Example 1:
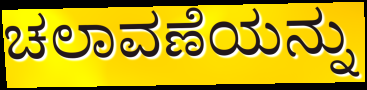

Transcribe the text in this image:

ಚಲಾವಣೆಯನ್ನು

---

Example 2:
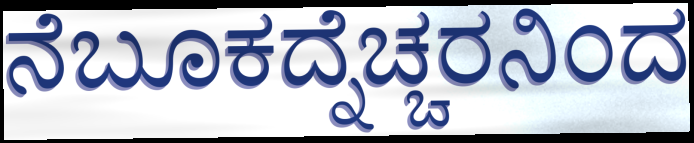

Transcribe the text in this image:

ನೆಬೂಕದ್ನೆಚ್ಚರನಿಂದ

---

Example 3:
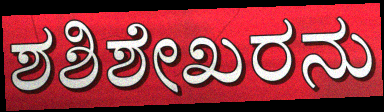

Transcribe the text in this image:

ಶಶಿಶೇಖರನು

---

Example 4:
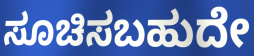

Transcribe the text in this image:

ಸೂಚಿಸಬಹುದೇ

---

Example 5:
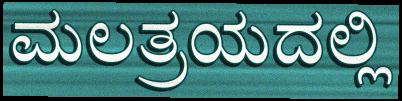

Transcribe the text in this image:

ಮಲತ್ರಯದಲ್ಲಿ